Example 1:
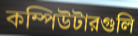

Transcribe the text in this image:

কম্পিউটারগুলি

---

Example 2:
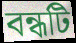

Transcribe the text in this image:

বন্ধটি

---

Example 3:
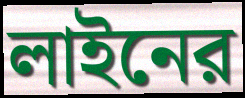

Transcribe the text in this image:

লাইনের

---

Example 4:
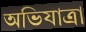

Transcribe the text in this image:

অভিযাত্রা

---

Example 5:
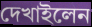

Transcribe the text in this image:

দেখাইলেন